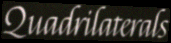
Quadrilaterals